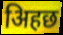
अिहछ